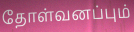
தோள்வனப்பும்